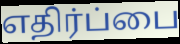
எதிர்ப்பை